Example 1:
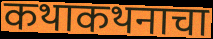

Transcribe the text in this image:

कथाकथनाचा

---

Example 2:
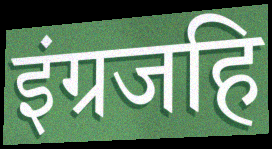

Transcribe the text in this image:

इंग्रजहि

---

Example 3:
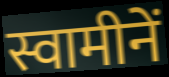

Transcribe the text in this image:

स्वामीनें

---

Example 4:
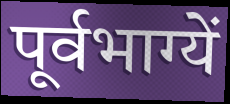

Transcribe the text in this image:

पूर्वभाग्यें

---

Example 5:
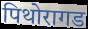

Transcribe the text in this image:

पिथोरागड